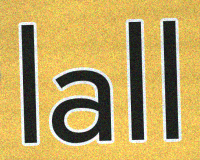
lall